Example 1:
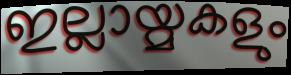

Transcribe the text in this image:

ഇല്ലായ്മകളും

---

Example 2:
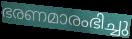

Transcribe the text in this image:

ഭരണമാരംഭിച്ചു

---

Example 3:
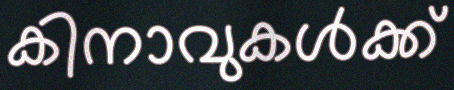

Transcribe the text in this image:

കിനാവുകൾക്ക്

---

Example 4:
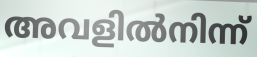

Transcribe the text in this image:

അവളിൽനിന്ന്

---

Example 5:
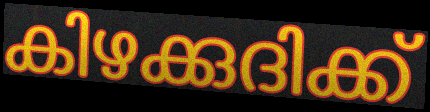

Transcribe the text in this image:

കിഴക്കുദിക്ക്